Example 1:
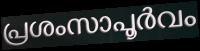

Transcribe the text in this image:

പ്രശംസാപൂർവം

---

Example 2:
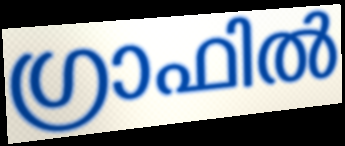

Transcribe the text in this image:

ഗ്രാഫിൽ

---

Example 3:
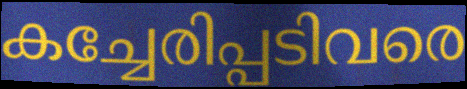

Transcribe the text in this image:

കച്ചേരിപ്പടിവരെ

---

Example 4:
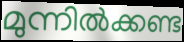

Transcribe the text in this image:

മുന്നിൽക്കണ്ട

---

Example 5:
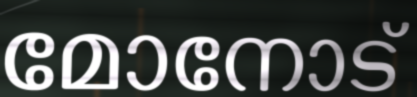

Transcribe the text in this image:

മോനോട്